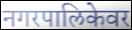
नगरपालिकेवर